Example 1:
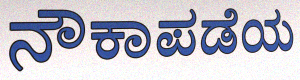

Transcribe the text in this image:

ನೌಕಾಪಡೆಯ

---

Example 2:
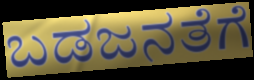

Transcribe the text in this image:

ಬಡಜನತೆಗೆ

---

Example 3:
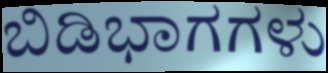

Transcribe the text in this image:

ಬಿಡಿಭಾಗಗಳು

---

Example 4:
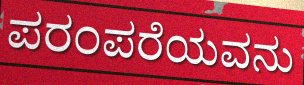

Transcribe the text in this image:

ಪರಂಪರೆಯವನು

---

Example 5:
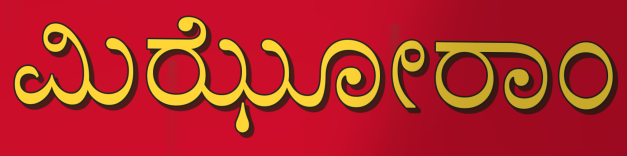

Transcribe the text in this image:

ಮಿಝೋರಾಂ